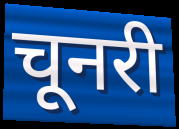
चूनरी